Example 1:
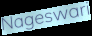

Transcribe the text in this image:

Nageswari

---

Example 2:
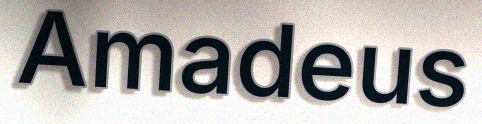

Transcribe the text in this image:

Amadeus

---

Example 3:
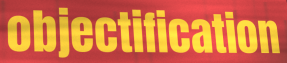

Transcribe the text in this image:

objectification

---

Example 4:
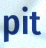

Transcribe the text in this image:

pit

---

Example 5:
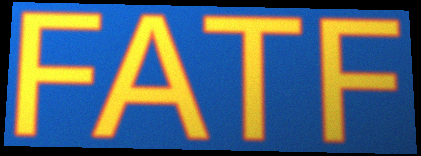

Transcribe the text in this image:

FATF